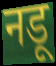
नडू